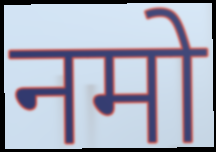
नमो